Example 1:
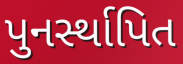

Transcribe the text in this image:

પુનર્સ્થાપિત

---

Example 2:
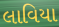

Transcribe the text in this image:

લાવિયા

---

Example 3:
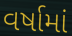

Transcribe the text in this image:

વર્ષામાં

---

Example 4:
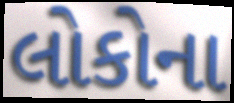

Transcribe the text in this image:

લોકોના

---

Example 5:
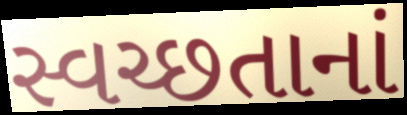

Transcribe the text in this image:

સ્વચ્છતાનાં